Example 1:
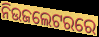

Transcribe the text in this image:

ନିଉଜଲେଟରରେ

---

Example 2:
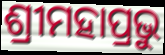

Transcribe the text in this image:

ଶ୍ରୀମହାପ୍ରଭୁ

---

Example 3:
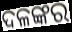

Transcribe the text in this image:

ଦଳଙ୍କର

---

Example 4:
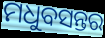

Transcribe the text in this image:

ମଧୁବସନ୍ତର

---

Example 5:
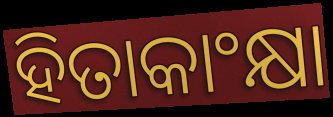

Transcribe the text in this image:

ହିତାକାଂକ୍ଷା